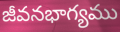
జీవనభాగ్యము